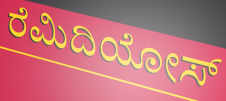
ರೆಮಿದಿಯೋಸ್